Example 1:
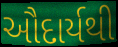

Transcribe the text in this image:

ઔદાર્યથી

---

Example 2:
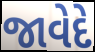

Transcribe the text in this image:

જાવેદે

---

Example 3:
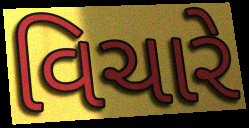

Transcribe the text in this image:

વિચારે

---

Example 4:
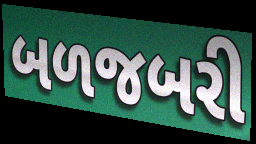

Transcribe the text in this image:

બળજબરી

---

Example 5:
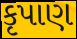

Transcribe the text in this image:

કૃપાણ